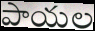
పాయల